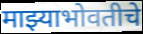
माझ्याभोवतीचे